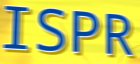
ISPR